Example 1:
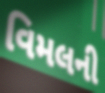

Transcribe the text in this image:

વિમલની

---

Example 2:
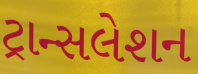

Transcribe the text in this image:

ટ્રાન્સલેશન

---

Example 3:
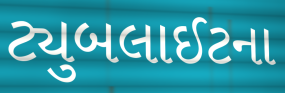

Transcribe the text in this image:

ટ્યુબલાઈટના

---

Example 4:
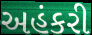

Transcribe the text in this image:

અહંકરી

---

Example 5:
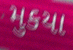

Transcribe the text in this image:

મુકયા